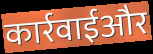
कार्रवाईऔर